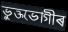
ভুক্তভোগীৰ